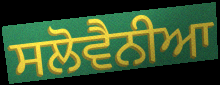
ਸਲੋਵੈਨੀਆ